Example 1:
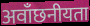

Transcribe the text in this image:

अवाँछनीयता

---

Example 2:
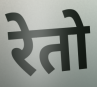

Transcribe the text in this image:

रेतो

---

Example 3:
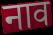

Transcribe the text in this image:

नाव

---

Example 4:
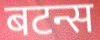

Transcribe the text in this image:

बटन्स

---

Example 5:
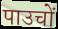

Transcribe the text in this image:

पाउचों